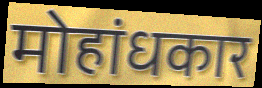
मोहांधकार